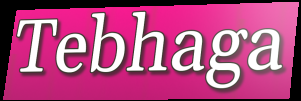
Tebhaga